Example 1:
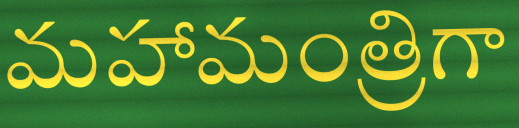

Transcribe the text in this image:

మహామంత్రిగా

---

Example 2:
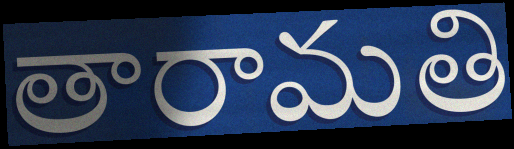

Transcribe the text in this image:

తారామతి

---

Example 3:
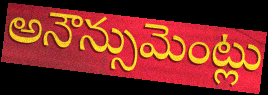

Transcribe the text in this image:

అనౌన్సుమెంట్లు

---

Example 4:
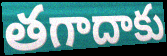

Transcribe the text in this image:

తగాదాకు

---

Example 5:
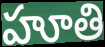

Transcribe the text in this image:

హూతి